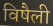
विषैली